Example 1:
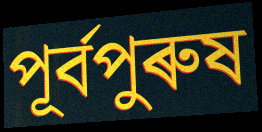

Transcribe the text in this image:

পূৰ্বপুৰুষ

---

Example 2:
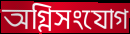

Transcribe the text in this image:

অগ্নিসংযোগ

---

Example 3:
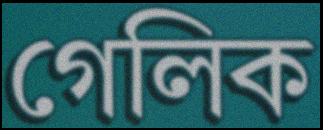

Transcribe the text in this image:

গেলিক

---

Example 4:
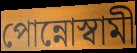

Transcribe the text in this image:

পোন্নোস্বামী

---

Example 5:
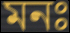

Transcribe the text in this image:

মনঃ